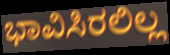
ಭಾವಿಸಿರಲಿಲ್ಲ